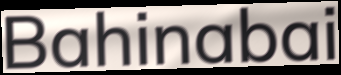
Bahinabai